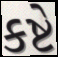
કષ્ટે